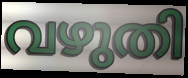
വഴുതി